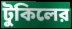
টুকিলের